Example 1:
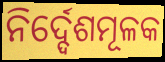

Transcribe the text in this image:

ନିର୍ଦ୍ଦେଶମୂଳକ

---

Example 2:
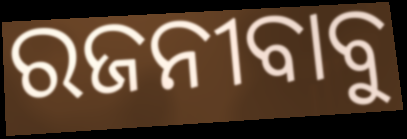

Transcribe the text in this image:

ରଜନୀବାବୁ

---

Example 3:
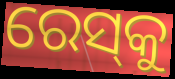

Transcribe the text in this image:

ରେସ୍‌କୁ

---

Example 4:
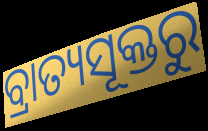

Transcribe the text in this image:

ବ୍ରାତ୍ୟସୂକ୍ତରୁ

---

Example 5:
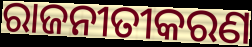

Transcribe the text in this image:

ରାଜନୀତୀକରଣ